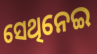
ସେଥିନେଇ